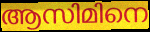
ആസിമിനെ